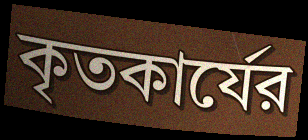
কৃতকার্যের